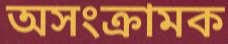
অসংক্রামক